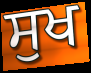
ਸੁਖ